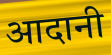
आदानी